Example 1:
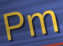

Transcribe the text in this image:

Pm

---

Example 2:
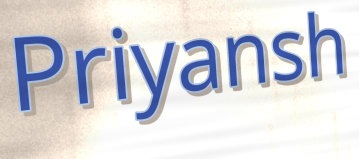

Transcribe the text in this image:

Priyansh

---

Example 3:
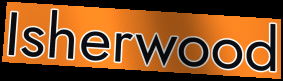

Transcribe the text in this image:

Isherwood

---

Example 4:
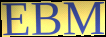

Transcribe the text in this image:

EBM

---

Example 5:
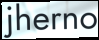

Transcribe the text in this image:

jherno